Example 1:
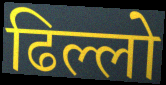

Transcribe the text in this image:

ढिल्लो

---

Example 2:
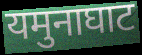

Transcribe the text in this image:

यमुनाघाट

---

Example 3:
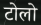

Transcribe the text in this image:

टोलो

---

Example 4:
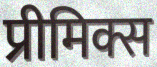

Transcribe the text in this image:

प्रीमिक्स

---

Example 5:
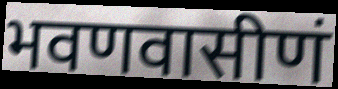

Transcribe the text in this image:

भवणवासीणं